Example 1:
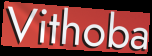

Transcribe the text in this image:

Vithoba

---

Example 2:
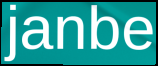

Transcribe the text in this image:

janbe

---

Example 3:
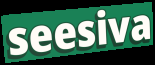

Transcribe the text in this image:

seesiva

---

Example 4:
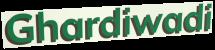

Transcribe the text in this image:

Ghardiwadi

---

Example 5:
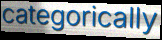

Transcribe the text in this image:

categorically